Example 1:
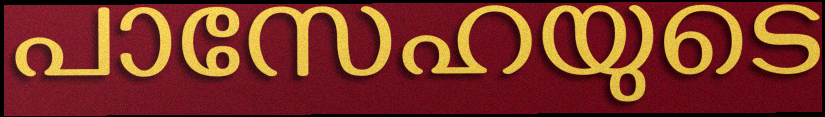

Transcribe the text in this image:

പാസേഹയുടെ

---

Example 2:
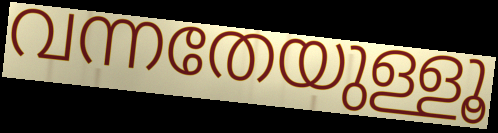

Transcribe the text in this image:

വന്നതേയുള്ളൂ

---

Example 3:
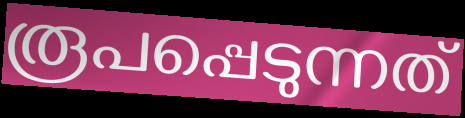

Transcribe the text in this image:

രൂപപ്പെടുന്നത്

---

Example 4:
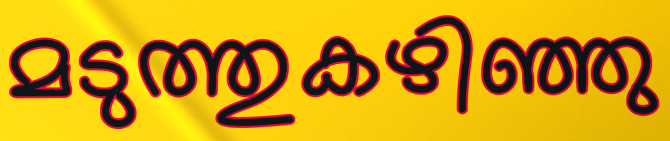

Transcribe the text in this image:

മടുത്തുകഴിഞ്ഞു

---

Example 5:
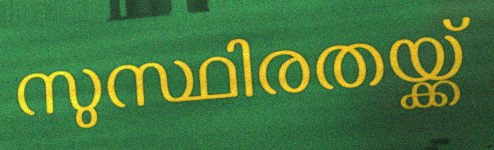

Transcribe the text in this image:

സുസ്ഥിരതയ്ക്ക്